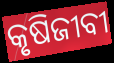
କୃଷିଜୀବୀ